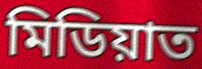
মিডিয়াত